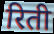
रिती